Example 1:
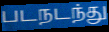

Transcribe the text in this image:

படநடந்து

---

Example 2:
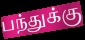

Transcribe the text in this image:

பந்துக்கு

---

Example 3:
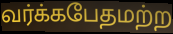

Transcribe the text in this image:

வர்க்கபேதமற்ற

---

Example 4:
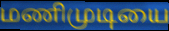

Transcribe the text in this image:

மணிமுடியை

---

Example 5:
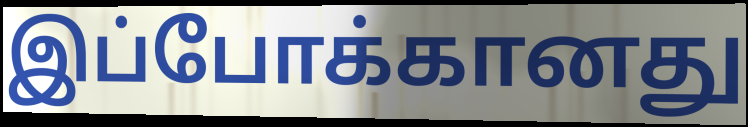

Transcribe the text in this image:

இப்போக்கானது